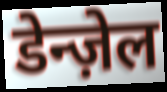
डेन्ज़ेल